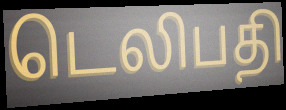
டெலிபதி